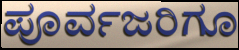
ಪೂರ್ವಜರಿಗೂ